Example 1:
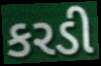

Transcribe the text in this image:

કરડી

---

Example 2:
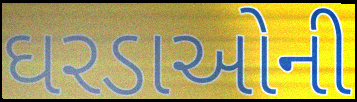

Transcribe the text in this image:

ઘરડાઓની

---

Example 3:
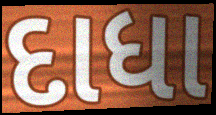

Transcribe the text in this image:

દાધા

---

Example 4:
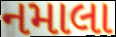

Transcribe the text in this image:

નમાલા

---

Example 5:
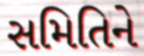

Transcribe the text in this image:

સમિતિને